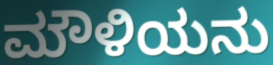
ಮೌಳಿಯನು